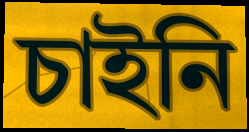
চাইনি